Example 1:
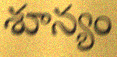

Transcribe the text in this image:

శూన్యం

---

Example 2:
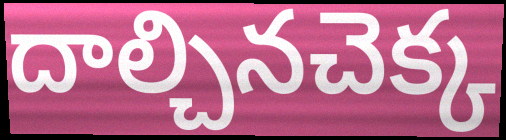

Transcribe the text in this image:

దాల్చినచెక్క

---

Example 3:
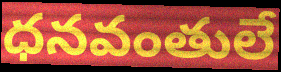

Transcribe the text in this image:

ధనవంతులే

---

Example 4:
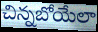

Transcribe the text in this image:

చిన్నబోయేలా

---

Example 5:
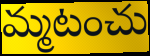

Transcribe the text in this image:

మ్మటంచు